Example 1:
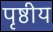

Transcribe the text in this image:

पृष्ठीय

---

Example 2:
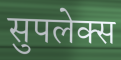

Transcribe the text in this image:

सुपलेक्स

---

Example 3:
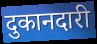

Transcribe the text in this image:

दुकानदारी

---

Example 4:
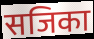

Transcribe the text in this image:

सजिका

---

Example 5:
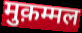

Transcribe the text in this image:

मुक़म्मल